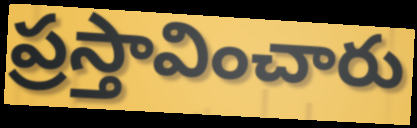
ప్రస్తావించారు